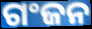
ଗଂଜନ